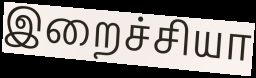
இறைச்சியா